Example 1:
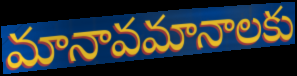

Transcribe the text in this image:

మానావమానాలకు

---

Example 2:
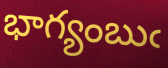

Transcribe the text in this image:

భాగ్యంబుఁ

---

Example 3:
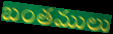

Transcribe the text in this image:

బంతములు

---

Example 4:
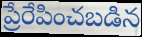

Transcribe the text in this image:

ప్రేరేపించబడిన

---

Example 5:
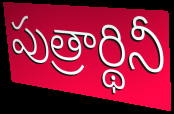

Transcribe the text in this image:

పుత్రార్థినీ